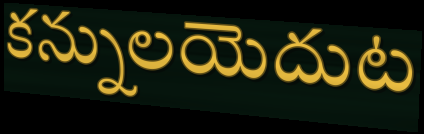
కన్నులయెదుట